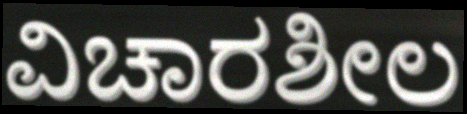
ವಿಚಾರಶೀಲ